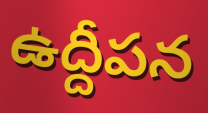
ఉద్దీపన